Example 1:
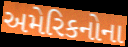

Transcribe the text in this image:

અમેરિકનોના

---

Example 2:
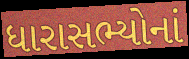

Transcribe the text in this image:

ધારાસભ્યોનાં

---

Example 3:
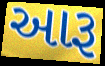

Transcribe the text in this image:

આરૂ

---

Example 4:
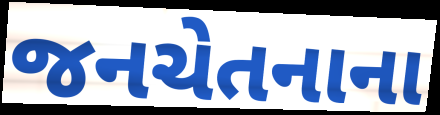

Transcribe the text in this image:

જનચેતનાના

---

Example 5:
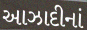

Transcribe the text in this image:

આઝાદીનાં